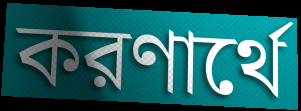
করণার্থে